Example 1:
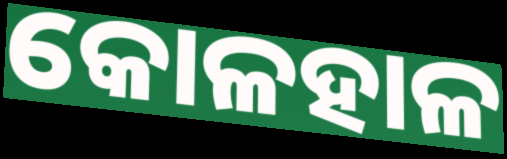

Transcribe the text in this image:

କୋଳହାଳ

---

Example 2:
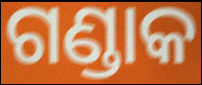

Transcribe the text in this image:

ଗଣ୍ଡାକ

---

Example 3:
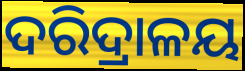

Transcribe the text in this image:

ଦରିଦ୍ରାଳୟ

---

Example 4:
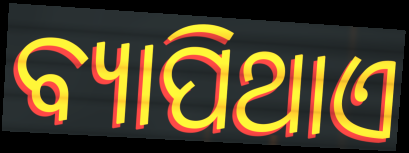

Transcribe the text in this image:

ବ୍ୟାପିଥାଏ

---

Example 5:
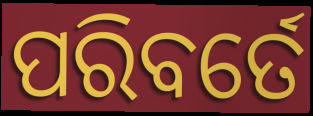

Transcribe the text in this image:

ପରିବର୍ତେ